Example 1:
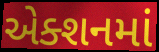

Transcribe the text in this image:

એક્શનમાં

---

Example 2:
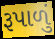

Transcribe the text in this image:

રૂપાળું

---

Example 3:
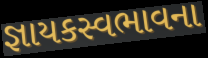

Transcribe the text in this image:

જ્ઞાયકસ્વભાવના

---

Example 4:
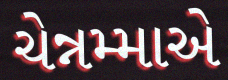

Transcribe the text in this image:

ચેન્નમ્માએ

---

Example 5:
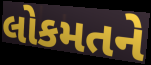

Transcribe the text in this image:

લોકમતને